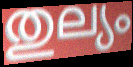
തുല്യം